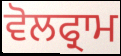
ਵੋਲਫ੍ਰਾਮ